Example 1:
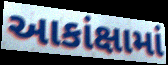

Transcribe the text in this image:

આકાંક્ષામાં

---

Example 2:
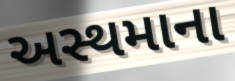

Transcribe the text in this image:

અસ્થમાના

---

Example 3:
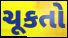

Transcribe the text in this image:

ચૂકતો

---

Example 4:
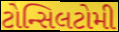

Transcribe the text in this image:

ટોન્સિલટોમી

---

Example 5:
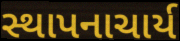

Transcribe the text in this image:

સ્થાપનાચાર્ય